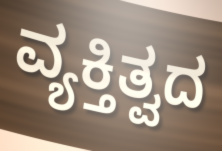
ವ್ಯಕ್ತಿತ್ವದ